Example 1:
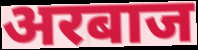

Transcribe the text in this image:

अरबाज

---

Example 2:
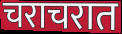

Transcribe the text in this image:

चराचरात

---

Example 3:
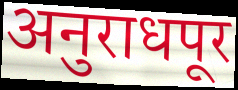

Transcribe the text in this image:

अनुराधपूर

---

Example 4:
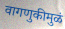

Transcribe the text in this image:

वागणुकीमुळं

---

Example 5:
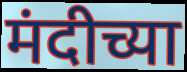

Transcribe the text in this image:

मंदीच्या